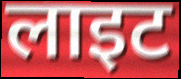
लाइट